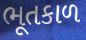
ભૂતકાળ